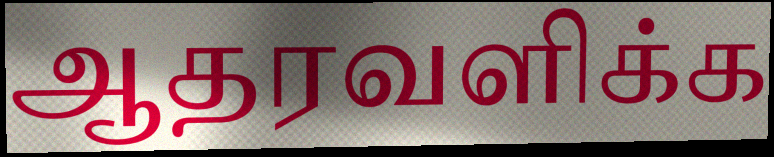
ஆதரவளிக்க